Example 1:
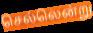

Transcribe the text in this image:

செல்லென்று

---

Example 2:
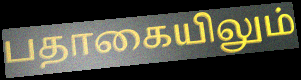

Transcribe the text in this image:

பதாகையிலும்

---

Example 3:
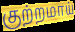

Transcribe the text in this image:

குற்றமாய்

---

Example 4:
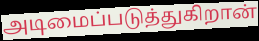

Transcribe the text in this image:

அடிமைப்படுத்துகிறான்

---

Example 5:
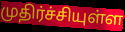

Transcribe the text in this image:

முதிர்ச்சியுள்ள